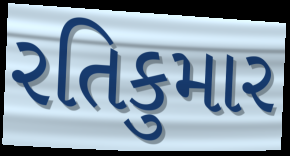
રતિકુમાર